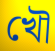
খৌ